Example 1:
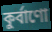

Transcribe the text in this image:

কুর্বাণো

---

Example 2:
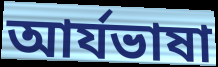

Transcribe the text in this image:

আর্যভাষা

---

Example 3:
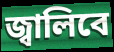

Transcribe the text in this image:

জ্বালিবে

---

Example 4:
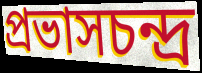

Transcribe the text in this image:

প্রভাসচন্দ্র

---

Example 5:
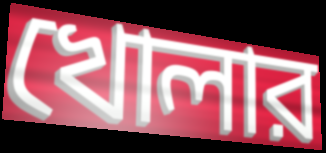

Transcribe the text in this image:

খোলার